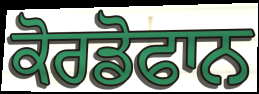
ਕੋਰਡੋਫਾਨ